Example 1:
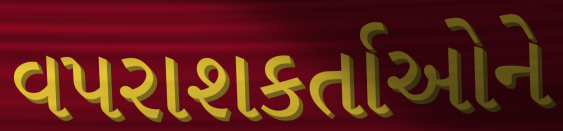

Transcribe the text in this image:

વપરાશકર્તાઓને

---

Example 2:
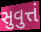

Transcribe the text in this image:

સુવુત્તં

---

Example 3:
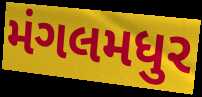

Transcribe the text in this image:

મંગલમધુર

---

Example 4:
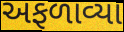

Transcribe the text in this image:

અફળાવ્યા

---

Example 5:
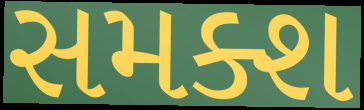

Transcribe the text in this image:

સમક્શ